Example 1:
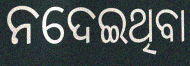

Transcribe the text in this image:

ନଦେଇଥିବା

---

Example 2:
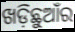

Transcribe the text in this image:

ଖଡ଼ିଛୁଆଁର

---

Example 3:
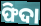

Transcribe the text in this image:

ଫିଦା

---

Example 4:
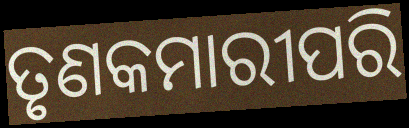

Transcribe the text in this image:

ତୃଣକମାରୀପରି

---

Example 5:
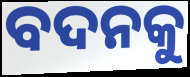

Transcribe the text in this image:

ବଦନକୁ